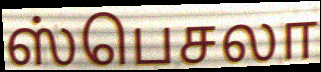
ஸ்பெசலா